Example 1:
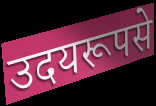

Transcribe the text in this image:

उदयरूपसे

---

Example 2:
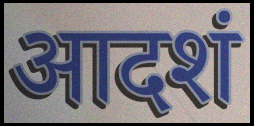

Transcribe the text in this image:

आदशं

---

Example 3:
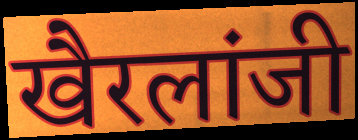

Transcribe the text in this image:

खैरलांजी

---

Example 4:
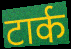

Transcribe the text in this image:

टार्क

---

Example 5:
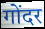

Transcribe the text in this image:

गोंदर